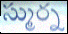
స్ముర్న